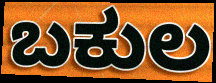
ಬಕುಲ